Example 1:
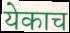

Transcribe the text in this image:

येकाच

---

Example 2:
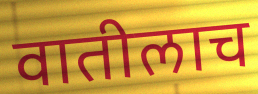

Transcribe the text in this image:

वातीलाच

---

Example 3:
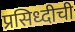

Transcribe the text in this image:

प्रसिध्दीची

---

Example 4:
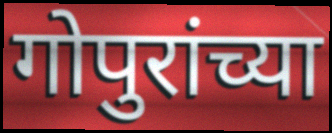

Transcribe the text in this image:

गोपुरांच्या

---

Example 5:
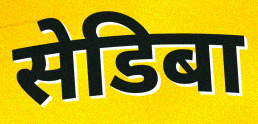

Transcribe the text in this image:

सेडिबा